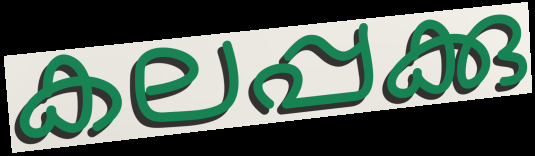
കലപ്പക്കു